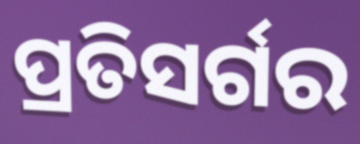
ପ୍ରତିସର୍ଗର